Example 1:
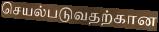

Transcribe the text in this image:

செயல்படுவதற்கான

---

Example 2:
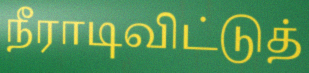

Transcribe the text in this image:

நீராடிவிட்டுத்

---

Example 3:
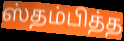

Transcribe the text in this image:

ஸ்தம்பித்த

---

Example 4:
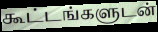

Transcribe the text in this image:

கூட்டங்களுடன்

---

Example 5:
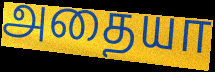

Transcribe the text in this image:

அதையா